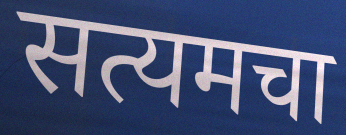
सत्यमचा